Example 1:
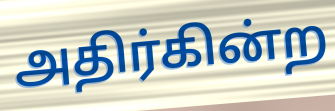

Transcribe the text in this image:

அதிர்கின்ற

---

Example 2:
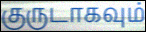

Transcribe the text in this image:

குருடாகவும்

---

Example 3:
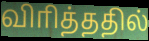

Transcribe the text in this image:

விரித்ததில்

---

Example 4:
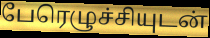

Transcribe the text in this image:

பேரெழுச்சியுடன்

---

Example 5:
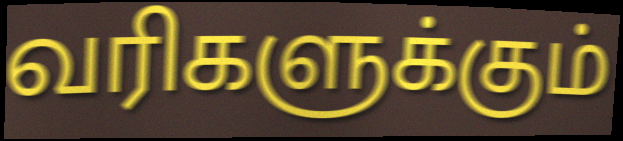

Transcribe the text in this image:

வரிகளுக்கும்